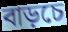
বাড়চে